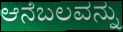
ಆನೆಬಲವನ್ನು